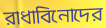
রাধাবিনোদের